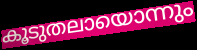
കൂടുതലായൊന്നും